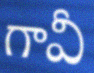
గావీ